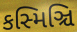
કસ્મિઞ્ચિ